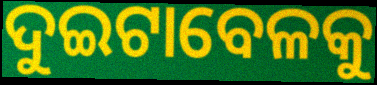
ଦୁଇଟାବେଳକୁ